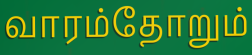
வாரம்தோறும்